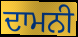
ਦਾਮਨੀ